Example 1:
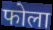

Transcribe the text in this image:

फोला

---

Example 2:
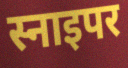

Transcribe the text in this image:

स्नाइपर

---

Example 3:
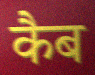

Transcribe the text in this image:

कैब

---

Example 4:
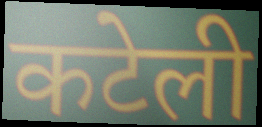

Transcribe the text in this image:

कटेली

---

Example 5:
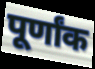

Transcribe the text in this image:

पूर्णांक